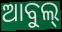
ଆବୁଲ୍